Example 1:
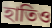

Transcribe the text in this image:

হাতিও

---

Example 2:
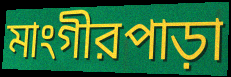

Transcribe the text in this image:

মাংগীরপাড়া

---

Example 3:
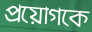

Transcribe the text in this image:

প্রয়োগকে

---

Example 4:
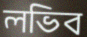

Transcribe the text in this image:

লভিব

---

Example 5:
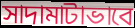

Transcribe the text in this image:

সাদামাটাভাবে